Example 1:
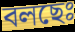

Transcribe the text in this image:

বলছেঃ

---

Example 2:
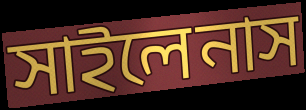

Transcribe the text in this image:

সাইলেনাস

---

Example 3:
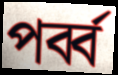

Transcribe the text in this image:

পর্ব্ব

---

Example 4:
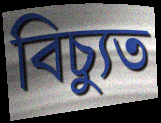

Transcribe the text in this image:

বিচ্যুত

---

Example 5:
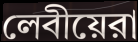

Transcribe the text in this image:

লেবীয়েরা